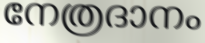
നേത്രദാനം